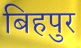
बिहपुर